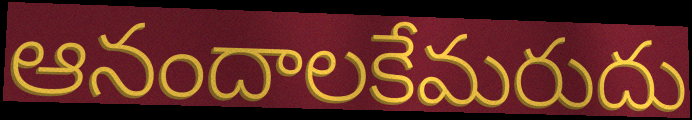
ఆనందాలకేమరుదు